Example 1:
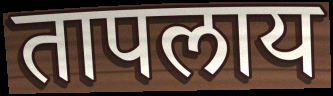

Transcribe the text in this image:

तापलाय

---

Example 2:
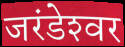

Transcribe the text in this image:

जरंडेश्वर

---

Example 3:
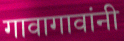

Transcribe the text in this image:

गावागावांनी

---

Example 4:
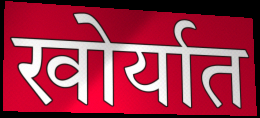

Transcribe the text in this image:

खोर्यात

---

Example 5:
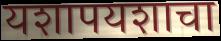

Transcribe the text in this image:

यशापयशाचा